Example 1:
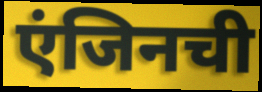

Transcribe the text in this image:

एंजिनची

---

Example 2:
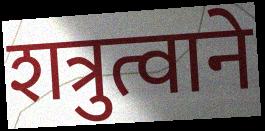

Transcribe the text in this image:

शत्रुत्वाने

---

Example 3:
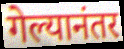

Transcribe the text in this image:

गेल्यानंतर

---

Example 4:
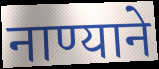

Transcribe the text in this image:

नाण्याने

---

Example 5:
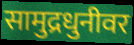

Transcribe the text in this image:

सामुद्रधुनीवर